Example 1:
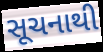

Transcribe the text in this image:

સૂચનાથી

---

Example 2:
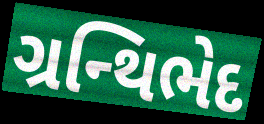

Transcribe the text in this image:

ગ્રન્થિભેદ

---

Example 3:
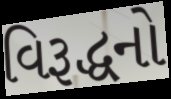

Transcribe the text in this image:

વિરૂદ્ધનો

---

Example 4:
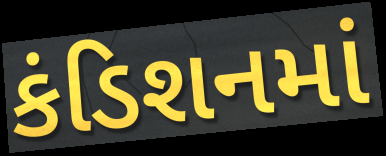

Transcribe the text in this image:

કંડિશનમાં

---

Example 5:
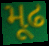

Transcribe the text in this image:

મૂઢ